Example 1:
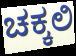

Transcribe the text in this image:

ಚಕ್ಕಲಿ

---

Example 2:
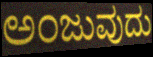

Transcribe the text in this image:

ಅಂಜುವುದು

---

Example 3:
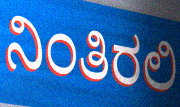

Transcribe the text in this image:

ನಿಂತಿರಲಿ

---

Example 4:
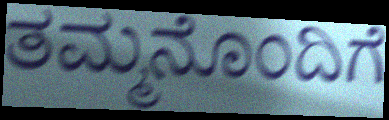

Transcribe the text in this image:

ತಮ್ಮನೊಂದಿಗೆ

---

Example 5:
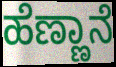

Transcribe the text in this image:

ಹೆಣ್ಣಾನೆ